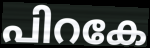
പിറകേ